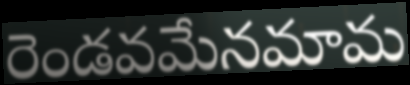
రెండవమేనమామ